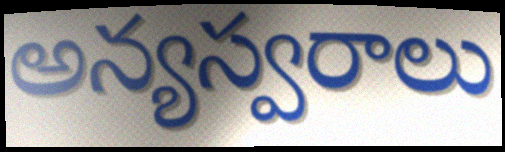
అన్యస్వరాలు